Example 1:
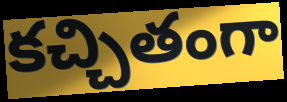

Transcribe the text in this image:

కచ్చితంగా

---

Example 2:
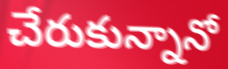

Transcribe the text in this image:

చేరుకున్నానో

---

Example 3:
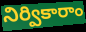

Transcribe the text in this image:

నిర్వికారాం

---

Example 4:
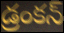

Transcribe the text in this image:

డ్రంకన్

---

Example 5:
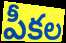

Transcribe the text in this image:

పీకల